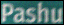
Pashu